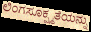
ಲಿಂಗಸೂಕ್ಷ್ಮತೆಯನ್ನು